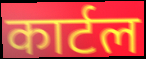
कार्टल